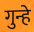
गुन्हे